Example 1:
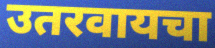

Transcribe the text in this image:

उतरवायचा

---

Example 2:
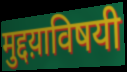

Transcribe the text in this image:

मुद्दय़ाविषयी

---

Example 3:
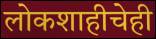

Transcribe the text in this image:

लोकशाहीचेही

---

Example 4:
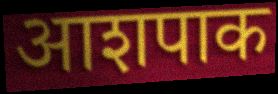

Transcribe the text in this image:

आशपाक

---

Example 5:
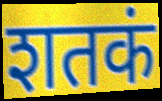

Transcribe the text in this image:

शतकं